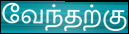
வேந்தற்கு